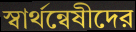
স্বার্থন্বেষীদের